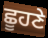
ਛੂਹਣੇ